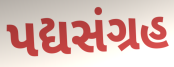
પદ્યસંગ્રહ